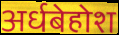
अर्धबेहोश